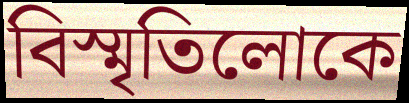
বিস্মৃতিলোকে